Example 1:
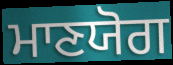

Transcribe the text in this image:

ਮਾਣਯੋਗ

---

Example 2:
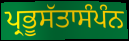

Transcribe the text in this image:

ਪ੍ਰਭੂਸੱਤਾਸੰਪੰਨ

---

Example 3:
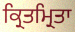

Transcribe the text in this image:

ਕ੍ਰਿਤਮ੍ਰਿਤਾ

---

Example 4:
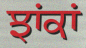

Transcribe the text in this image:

ਝਾਂਕਾਂ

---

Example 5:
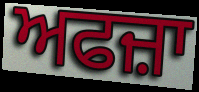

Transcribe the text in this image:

ਅਫਜ਼ਾ